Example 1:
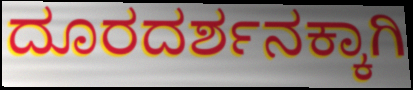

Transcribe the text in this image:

ದೂರದರ್ಶನಕ್ಕಾಗಿ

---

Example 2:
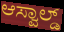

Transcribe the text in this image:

ಆಸ್ವಾಲ್ಡ್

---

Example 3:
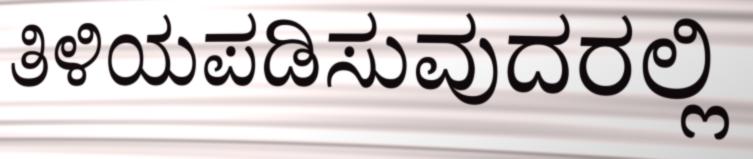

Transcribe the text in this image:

ತಿಳಿಯಪಡಿಸುವುದರಲ್ಲಿ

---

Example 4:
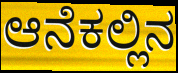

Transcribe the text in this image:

ಆನೆಕಲ್ಲಿನ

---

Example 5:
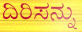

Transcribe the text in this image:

ದಿರಿಸನ್ನು